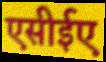
एसीईए